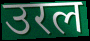
उरल